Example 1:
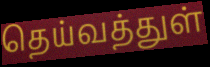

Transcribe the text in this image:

தெய்வத்துள்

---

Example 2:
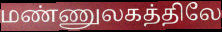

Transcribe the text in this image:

மண்ணுலகத்திலே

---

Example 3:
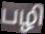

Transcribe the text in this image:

பழி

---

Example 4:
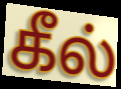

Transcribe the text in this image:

கீல்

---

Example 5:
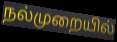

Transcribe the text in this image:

நல்முறையில்